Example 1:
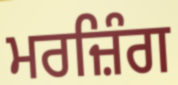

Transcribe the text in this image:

ਮਰਜ਼ਿੰਗ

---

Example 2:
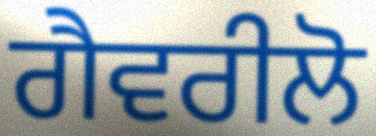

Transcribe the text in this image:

ਗੈਵਰੀਲੋ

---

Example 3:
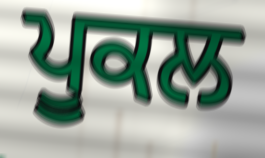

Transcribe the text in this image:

ਪੂਕਲ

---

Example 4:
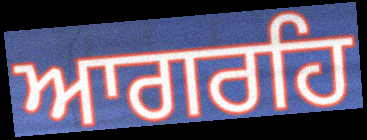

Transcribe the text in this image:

ਆਗਰਹਿ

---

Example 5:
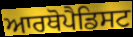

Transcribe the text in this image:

ਆਰਥੋਪੈਡਿਸਟ